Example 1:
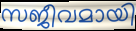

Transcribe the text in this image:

സജീവമായി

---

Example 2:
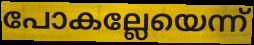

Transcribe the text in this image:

പോകല്ലേയെന്ന്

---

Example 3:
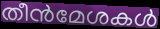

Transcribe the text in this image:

തീൻമേശകൾ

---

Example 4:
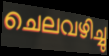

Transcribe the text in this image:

ചെലവഴിച്ചു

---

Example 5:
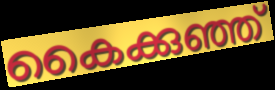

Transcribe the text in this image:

കൈക്കുഞ്ഞ്